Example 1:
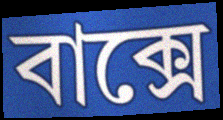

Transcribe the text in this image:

বাক্সে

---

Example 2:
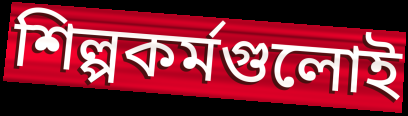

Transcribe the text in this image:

শিল্পকর্মগুলোই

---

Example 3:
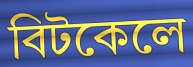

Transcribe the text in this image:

বিটকেলে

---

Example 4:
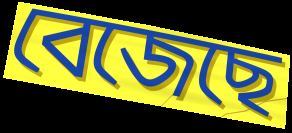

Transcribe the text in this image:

বেজেছে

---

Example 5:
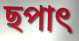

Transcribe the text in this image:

ছপাৎ